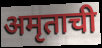
अमृताची